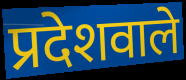
प्रदेशवाले